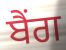
ਬੈਂਗ